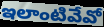
ఇలాంటివేవో